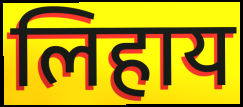
लिहाय